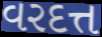
વરદત્ત